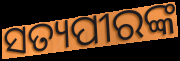
ସତ୍ୟପୀରଙ୍କ